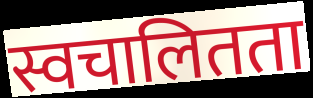
स्वचालितता